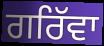
ਗਰਿੱਵਾ